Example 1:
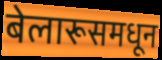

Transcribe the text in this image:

बेलारूसमधून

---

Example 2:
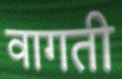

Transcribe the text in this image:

वागती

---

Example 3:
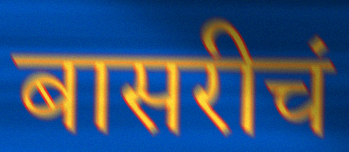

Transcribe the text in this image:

बासरीचं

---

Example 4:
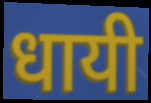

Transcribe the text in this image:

धायी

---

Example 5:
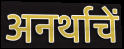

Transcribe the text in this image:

अनर्थाचें